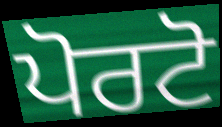
ਪੋਰਟੋ